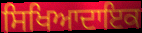
ਸਿਖਿਆਦਾਇਕ